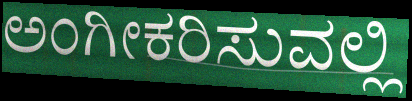
ಅಂಗೀಕರಿಸುವಲ್ಲಿ